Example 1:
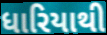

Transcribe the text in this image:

ધારિયાથી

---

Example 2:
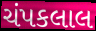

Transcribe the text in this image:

ચંપકલાલ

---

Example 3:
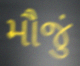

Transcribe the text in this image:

મૌજું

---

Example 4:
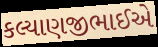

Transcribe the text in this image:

કલ્યાણજીભાઈએ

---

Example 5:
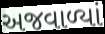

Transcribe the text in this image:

અજવાળ્યાં